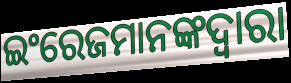
ଇଂରେଜମାନଙ୍କଦ୍ୱାରା